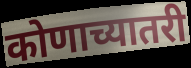
कोणाच्यातरी